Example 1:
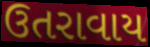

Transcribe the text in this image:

ઉતરાવાય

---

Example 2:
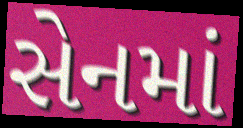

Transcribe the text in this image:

સેનમાં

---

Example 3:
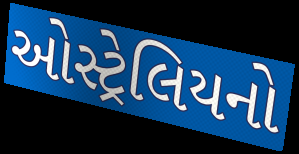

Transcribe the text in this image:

ઓસ્ટ્રેલિયનો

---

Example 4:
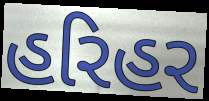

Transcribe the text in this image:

હરિહર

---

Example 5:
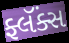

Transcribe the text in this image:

ફ્લૅંક્સ